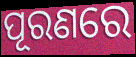
ପୂରଣରେ